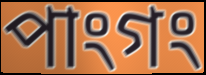
পাংগং